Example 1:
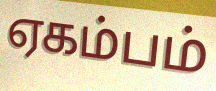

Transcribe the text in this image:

ஏகம்பம்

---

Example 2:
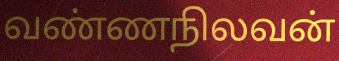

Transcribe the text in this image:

வண்ணநிலவன்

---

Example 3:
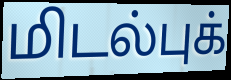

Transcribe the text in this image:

மிடல்புக்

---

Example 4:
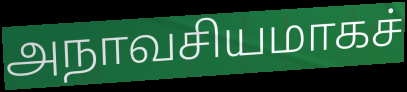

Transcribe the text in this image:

அநாவசியமாகச்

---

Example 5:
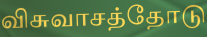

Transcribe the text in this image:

விசுவாசத்தோடு